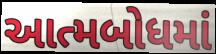
આત્મબોધમાં